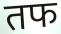
तफ